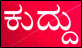
ಕುದ್ದು